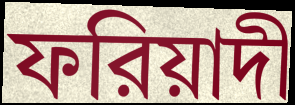
ফরিয়াদী